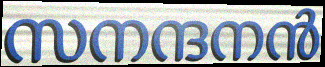
സനന്ദനൻ